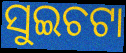
ସୁଇଚଟା